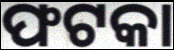
ଫଟକା